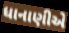
ધાનાણીએ